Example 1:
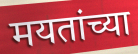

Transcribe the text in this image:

मयतांच्या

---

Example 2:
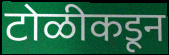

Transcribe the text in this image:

टोळीकडून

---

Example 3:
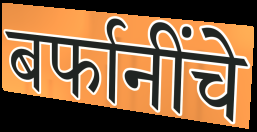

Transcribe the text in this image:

बर्फानींचे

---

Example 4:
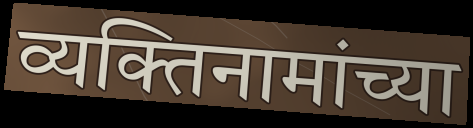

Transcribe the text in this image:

व्यक्तिनामांच्या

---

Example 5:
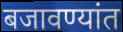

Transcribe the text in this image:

बजावण्यांत